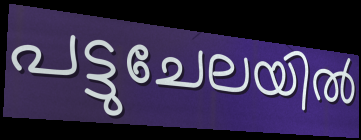
പട്ടുചേലയിൽ